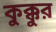
কুক্কুর